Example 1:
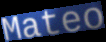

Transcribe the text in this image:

Mateo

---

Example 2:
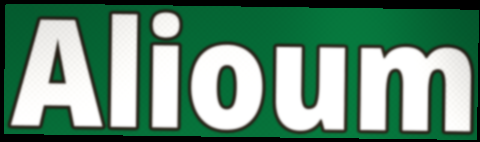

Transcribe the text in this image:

Alioum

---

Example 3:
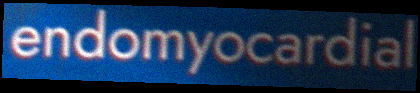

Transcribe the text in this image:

endomyocardial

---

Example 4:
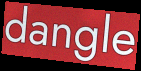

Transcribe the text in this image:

dangle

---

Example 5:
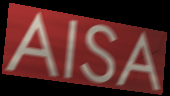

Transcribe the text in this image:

AISA